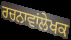
ਰਚਨਾਵਾਂਲੇਖਕ